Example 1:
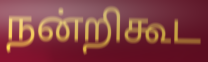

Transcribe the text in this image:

நன்றிகூட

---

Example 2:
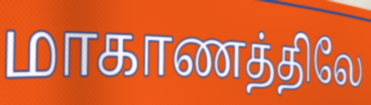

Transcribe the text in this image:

மாகாணத்திலே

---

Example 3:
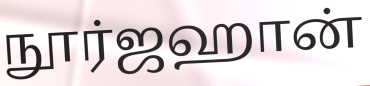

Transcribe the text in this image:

நூர்ஜஹான்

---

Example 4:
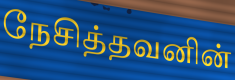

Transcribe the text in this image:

நேசித்தவனின்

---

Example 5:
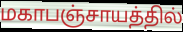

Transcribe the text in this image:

மகாபஞ்சாயத்தில்